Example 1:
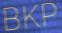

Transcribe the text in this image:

BKP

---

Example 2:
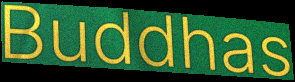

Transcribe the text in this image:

Buddhas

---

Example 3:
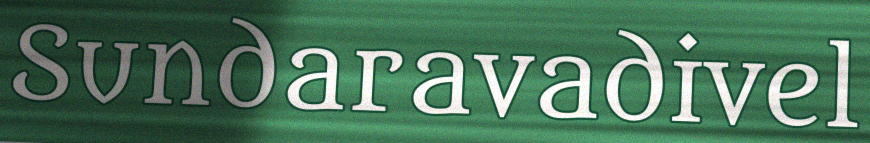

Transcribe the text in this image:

Sundaravadivel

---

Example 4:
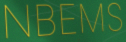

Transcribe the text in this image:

NBEMS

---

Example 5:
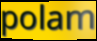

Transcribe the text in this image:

polam